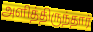
அளித்திருந்தார்